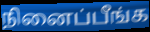
நினைப்பீங்க